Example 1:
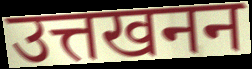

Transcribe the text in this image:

उत्तखनन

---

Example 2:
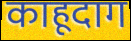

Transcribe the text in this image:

काहूदाग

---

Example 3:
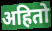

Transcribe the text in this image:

अहितो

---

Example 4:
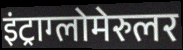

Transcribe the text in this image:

इंट्राग्लोमेरुलर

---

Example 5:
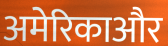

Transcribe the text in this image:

अमेरिकाऔर